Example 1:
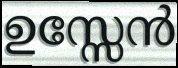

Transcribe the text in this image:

ഉസ്സേൻ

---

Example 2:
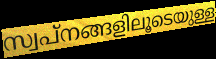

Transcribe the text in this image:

സ്വപ്നങ്ങളിലൂടെയുള്ള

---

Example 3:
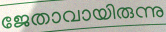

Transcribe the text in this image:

ജേതാവായിരുന്നു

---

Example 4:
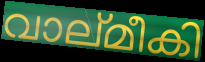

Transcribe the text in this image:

വാല്മീകി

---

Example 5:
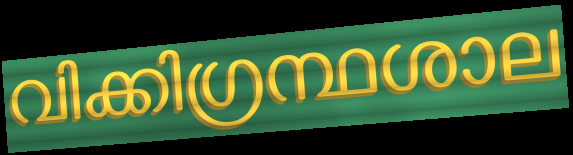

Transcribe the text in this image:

വിക്കിഗ്രന്ഥശാല